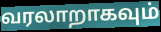
வரலாறாகவும்